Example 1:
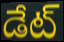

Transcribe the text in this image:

డేట్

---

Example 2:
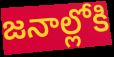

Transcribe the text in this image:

జనాల్లోకి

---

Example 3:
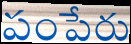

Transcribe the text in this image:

పంపేరు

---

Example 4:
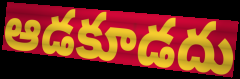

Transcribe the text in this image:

ఆడకూడదు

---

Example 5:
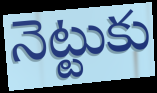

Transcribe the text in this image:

నెట్టుకు